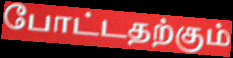
போட்டதற்கும்